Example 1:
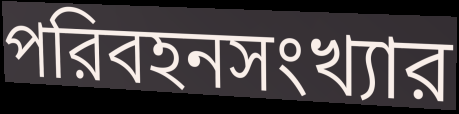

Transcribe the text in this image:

পরিবহনসংখ্যার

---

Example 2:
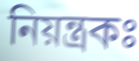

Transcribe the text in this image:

নিয়ন্ত্রকঃ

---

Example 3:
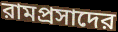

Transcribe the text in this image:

রামপ্রসাদের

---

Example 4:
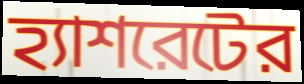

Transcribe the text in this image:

হ্যাশরেটের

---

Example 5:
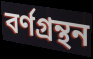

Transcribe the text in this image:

বর্ণগ্রন্থন